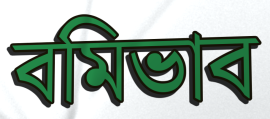
বমিভাব